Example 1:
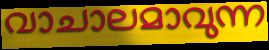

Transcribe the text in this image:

വാചാലമാവുന്ന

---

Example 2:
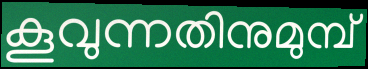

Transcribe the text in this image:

കൂവുന്നതിനുമുമ്പ്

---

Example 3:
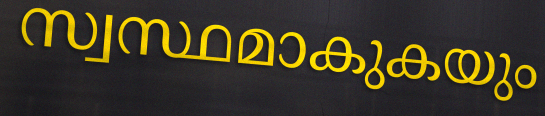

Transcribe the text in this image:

സ്വസ്ഥമാകുകയും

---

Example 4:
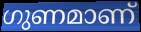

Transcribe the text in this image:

ഗുണമാണ്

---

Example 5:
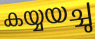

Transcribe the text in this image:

കയ്യയച്ചു